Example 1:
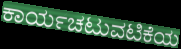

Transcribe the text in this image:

ಕಾರ್ಯಚಟುವಟಿಕೆಯ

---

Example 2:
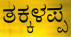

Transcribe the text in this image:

ತಕ್ಕಳಪ್ಪ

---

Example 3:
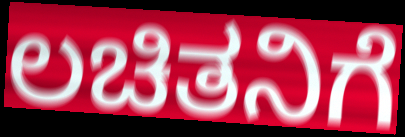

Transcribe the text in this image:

ಲಚಿತನಿಗೆ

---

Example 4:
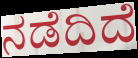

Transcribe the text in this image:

ನಡೆದಿದೆ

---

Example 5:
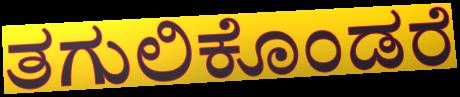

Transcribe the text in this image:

ತಗುಲಿಕೊಂಡರೆ